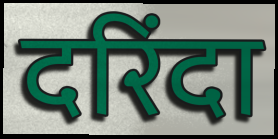
दरिंदा